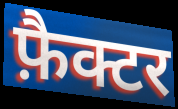
फ़ैक्टर